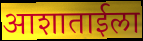
आशाताईला